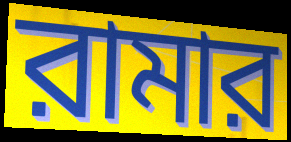
রামার